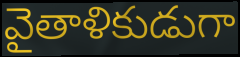
వైతాళికుడుగా